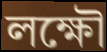
লক্ষৌ